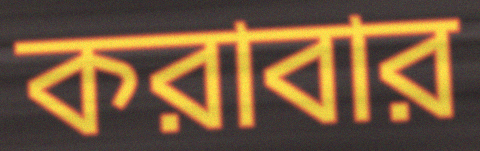
করাবার